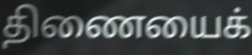
திணையைக்